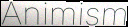
Animism